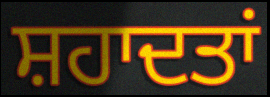
ਸ਼ਹਾਦਤਾਂ